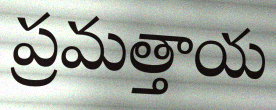
ప్రమత్తాయ